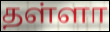
தள்ளா